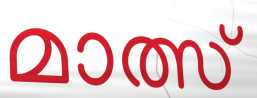
മാത്സ്